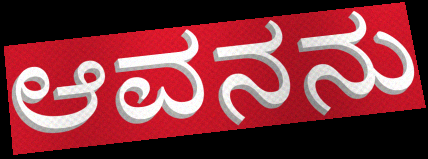
ಆವನನು